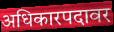
अधिकारपदावर